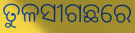
ତୁଳସୀଗଛରେ